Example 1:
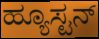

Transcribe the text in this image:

ಹ್ಯೂಸ್ಟನ್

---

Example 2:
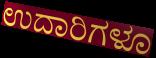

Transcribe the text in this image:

ಉದಾರಿಗಳೂ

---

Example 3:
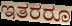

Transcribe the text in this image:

ಇತರರೂ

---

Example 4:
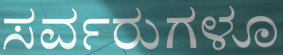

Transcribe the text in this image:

ಸರ್ವರುಗಳೂ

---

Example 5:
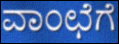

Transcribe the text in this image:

ವಾಂಛೆಗೆ